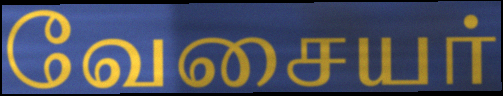
வேசையர்